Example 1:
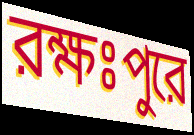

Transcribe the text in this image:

রক্ষঃপুরে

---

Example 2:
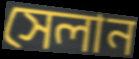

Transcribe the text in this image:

সেলান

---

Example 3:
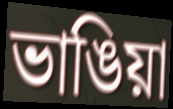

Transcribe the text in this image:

ভাঙিয়া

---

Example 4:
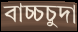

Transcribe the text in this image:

বাচ্চচুদা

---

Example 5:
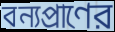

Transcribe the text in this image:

বন্যপ্রাণের